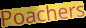
Poachers